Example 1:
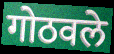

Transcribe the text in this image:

गोठवले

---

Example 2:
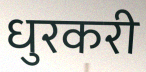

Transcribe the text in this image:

धुरकरी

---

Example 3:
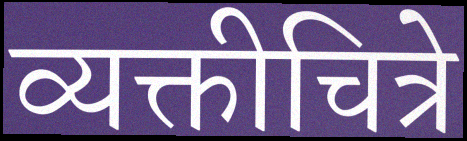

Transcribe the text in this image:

व्यक्तीचित्रे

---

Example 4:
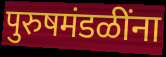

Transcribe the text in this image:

पुरुषमंडळींना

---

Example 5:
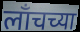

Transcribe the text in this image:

लाँचच्या